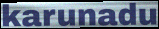
karunadu